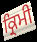
ਕ੍ਰਿਮੀ